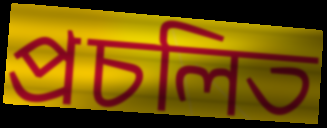
প্ৰচলিত